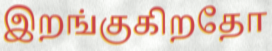
இறங்குகிறதோ